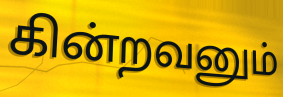
கின்றவனும்